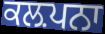
ਕਲ਼ਪਨਾ